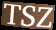
TSZ